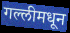
गल्लीमधून